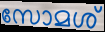
സോമശ്